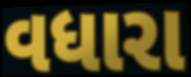
વધારા